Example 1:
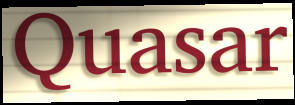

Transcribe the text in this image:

Quasar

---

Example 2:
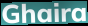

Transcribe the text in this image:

Ghaira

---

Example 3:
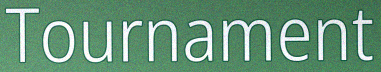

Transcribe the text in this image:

Tournament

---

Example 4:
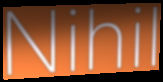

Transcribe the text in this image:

Nihil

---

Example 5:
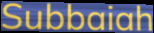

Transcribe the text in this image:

Subbaiah